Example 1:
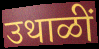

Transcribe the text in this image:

उथाळीं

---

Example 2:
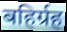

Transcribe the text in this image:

बहिर्ग्रह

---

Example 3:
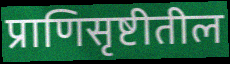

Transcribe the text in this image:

प्राणिसृष्टीतील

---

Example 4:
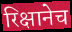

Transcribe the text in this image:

रिक्षानेच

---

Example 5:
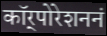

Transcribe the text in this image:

कॉर्पोरेशननं